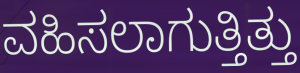
ವಹಿಸಲಾಗುತ್ತಿತ್ತು